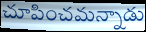
చూపించమన్నాడు